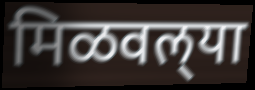
मिळवल्या